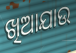
ଖିଆଯାଉ